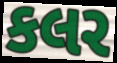
કલર